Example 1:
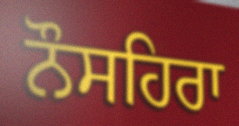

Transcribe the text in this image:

ਨੌਸਹਿਰਾ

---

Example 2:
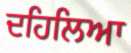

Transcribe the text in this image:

ਦਹਿਲਿਆ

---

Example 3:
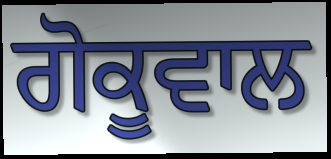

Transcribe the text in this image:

ਗੋਕੂਵਾਲ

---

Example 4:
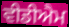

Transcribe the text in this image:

ਵੀਡੀਐਮ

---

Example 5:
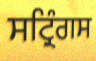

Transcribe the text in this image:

ਸਟ੍ਰਿੰਗਸ